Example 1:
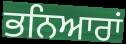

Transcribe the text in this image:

ਭਨਿਆਰਾਂ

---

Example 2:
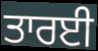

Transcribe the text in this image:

ਤਾਰਈ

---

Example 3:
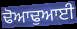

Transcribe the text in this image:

ਢੋਆਢੁਆਈ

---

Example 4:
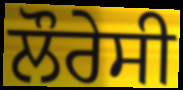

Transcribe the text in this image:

ਲੌਰੇਸੀ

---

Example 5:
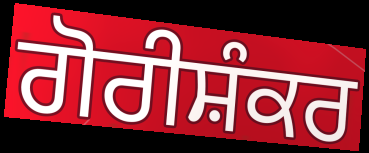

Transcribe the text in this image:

ਗੋਰੀਸ਼ੰਕਰ